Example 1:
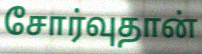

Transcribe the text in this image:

சோர்வுதான்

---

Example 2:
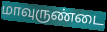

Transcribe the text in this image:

மாவுருண்டை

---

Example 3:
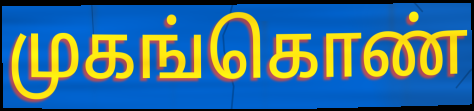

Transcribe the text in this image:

முகங்கொண்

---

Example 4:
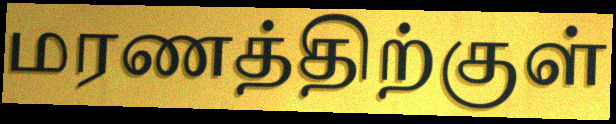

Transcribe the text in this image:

மரணத்திற்குள்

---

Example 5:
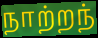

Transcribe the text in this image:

நாற்றந்